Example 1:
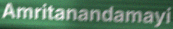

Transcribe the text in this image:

Amritanandamayi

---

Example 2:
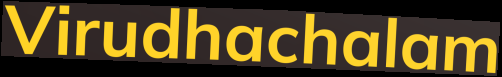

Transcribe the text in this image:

Virudhachalam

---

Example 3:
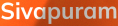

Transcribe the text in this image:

Sivapuram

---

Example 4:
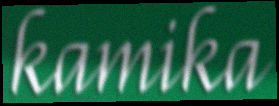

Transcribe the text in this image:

kamika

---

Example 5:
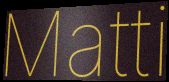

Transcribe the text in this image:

Matti